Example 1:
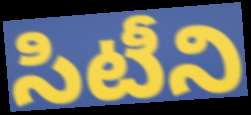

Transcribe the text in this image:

సిటీని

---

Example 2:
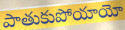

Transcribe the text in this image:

పాతుకుపోయాయో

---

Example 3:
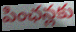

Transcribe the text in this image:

పింఛన్లకు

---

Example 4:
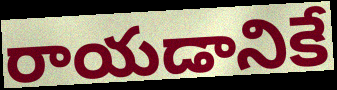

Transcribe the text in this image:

రాయడానికే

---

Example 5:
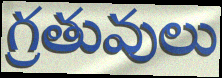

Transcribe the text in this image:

గ్రతువులు